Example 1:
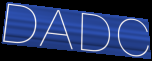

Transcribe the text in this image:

DADC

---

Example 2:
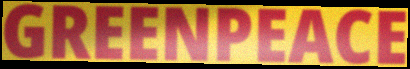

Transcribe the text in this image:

GREENPEACE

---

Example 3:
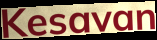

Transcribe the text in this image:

Kesavan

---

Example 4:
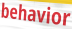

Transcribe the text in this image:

behavior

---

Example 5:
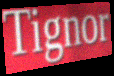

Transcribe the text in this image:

Tignor